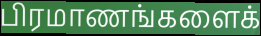
பிரமாணங்களைக்